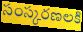
సంస్కరణలకి